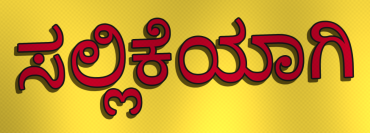
ಸಲ್ಲಿಕೆಯಾಗಿ